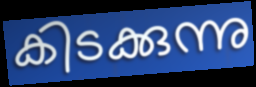
കിടക്കുന്നു